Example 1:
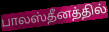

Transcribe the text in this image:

பாலஸ்தீனத்தில்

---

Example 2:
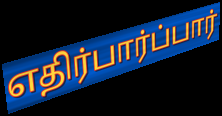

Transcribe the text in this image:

எதிர்பார்ப்பார்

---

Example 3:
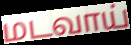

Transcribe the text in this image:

மடவாய்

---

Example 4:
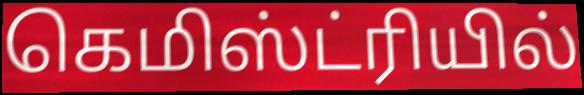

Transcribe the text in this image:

கெமிஸ்ட்ரியில்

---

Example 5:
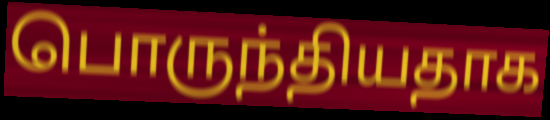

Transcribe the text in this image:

பொருந்தியதாக